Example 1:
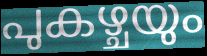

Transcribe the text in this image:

പുകഴ്ചയും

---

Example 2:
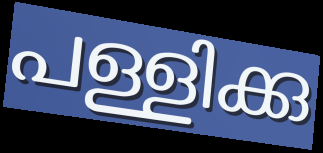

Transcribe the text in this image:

പള്ളിക്കു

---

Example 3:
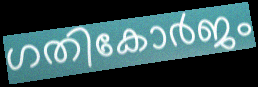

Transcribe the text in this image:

ഗതികോർജം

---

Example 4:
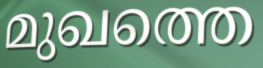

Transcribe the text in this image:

മുഖത്തെ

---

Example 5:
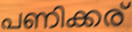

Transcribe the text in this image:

പണിക്കര്